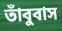
তাঁবুবাস